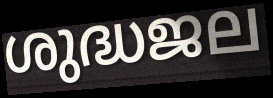
ശുദ്ധജല